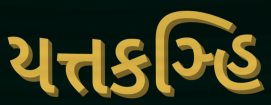
યત્તકઞ્હિ